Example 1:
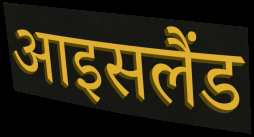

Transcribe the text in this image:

आइसलैंड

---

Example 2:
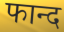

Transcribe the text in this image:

फान्द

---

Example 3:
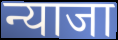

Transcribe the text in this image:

न्याजा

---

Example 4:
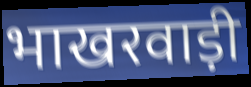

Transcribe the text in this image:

भाखरवाड़ी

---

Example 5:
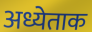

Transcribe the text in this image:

अध्येताक